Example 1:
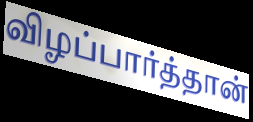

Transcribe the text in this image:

விழப்பார்த்தான்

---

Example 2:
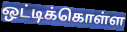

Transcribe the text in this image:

ஒட்டிக்கொள்ள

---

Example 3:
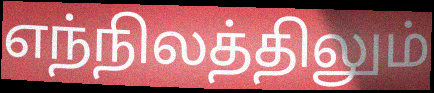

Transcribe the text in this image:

எந்நிலத்திலும்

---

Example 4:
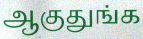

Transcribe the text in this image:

ஆகுதுங்க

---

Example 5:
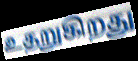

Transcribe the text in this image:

உதறுகிறது